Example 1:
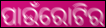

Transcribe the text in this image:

ପାଉଁରୋଟିର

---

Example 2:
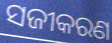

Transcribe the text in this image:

ସଜୀକରଣ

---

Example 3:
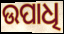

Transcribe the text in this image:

ଉପାଧି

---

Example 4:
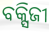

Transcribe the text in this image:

ବକ୍ସିଜୀ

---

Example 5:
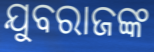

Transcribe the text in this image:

ଯୁବରାଜଙ୍କ